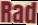
Rad